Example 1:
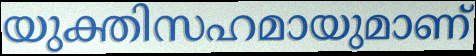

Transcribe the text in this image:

യുക്തിസഹമായുമാണ്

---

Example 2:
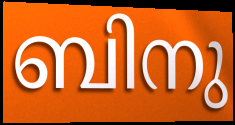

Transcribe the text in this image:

ബിനു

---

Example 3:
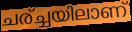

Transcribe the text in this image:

ചര്ച്ചയിലാണ്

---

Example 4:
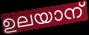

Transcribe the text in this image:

ഉലയാന്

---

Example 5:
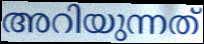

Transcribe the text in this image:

അറിയുന്നത്